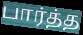
பார்த்த